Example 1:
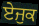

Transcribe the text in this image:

ਏਜੁਕ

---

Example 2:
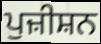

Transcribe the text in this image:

ਪੁਜ਼ੀਸ਼ਨ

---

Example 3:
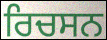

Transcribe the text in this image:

ਰਿਚਸਨ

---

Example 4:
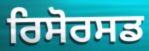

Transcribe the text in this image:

ਰਿਸੋਰਸਡ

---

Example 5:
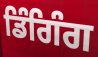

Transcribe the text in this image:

ਡਿੰਗਿੰਗ